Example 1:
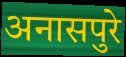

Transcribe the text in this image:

अनासपुरे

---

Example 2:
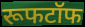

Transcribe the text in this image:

रूफटॉफ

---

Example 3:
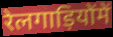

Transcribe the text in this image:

रेलगाड़ियोंमें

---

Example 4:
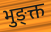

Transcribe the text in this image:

भुङ्क्त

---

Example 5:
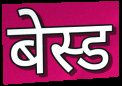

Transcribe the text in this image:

बेस्ड